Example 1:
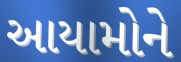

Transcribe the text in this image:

આયામોને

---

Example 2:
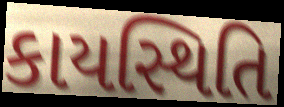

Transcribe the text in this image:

કાયસ્થિતિ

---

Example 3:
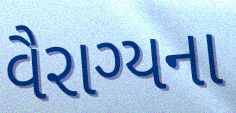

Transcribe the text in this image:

વૈરાગ્યના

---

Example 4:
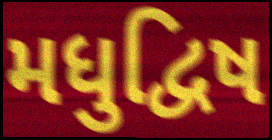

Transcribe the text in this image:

મધુદ્વિષ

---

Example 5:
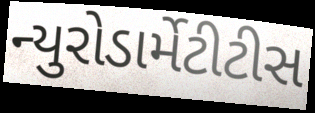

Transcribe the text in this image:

ન્યુરોડાર્મેટીટીસ